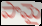
పామై